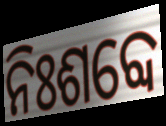
ନିଃଶବ୍ଦେ